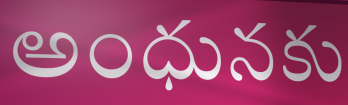
అంధునకు